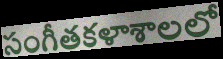
సంగీతకళాశాలలో